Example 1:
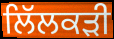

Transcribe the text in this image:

ਲਿੱਲਕੜੀ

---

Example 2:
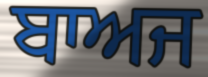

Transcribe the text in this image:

ਬਾਅਜ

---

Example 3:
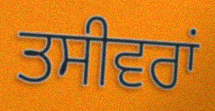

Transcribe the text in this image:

ਤਸੀਵਰਾਂ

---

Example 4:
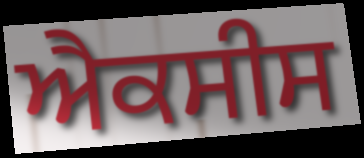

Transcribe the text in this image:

ਐਕਸੀਸ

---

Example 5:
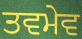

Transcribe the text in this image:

ਤਵਮੇਵ